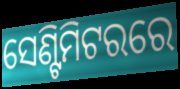
ସେଣ୍ଟିମିଟରରେ